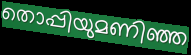
തൊപ്പിയുമണിഞ്ഞ